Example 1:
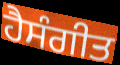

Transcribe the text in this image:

ਹੈਸੰਗੀਤ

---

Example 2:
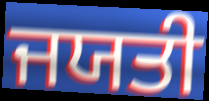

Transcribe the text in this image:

ਜਯਤੀ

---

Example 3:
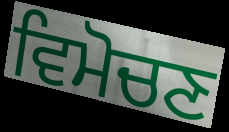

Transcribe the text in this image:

ਵਿਮੋਚਣ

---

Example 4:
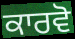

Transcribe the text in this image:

ਕਾਰਵੋ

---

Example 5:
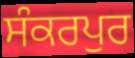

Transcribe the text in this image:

ਸੰਕਰਪੁਰ